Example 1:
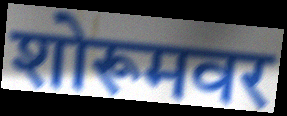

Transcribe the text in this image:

शोरूमवर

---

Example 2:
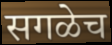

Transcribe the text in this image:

सगळेच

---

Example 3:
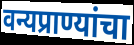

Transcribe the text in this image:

वन्यप्राण्यांचा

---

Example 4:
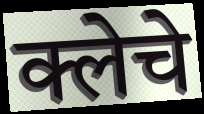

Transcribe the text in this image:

क्लेचे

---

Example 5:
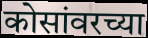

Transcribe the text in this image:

कोसांवरच्या